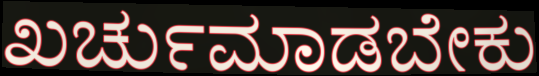
ಖರ್ಚುಮಾಡಬೇಕು